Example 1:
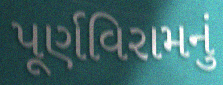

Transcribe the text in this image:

પૂર્ણવિરામનું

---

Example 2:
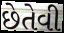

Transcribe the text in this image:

છેતેવી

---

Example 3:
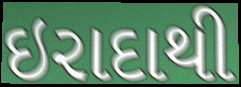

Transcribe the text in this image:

ઇરાદાથી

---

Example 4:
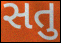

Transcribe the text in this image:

સતુ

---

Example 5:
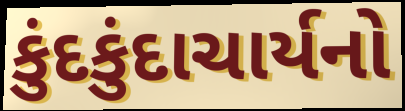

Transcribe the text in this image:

કુંદકુંદાચાર્યનો